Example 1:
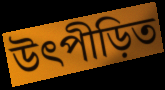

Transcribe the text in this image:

উৎপীড়িত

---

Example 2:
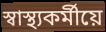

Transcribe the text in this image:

স্বাস্থ্যকৰ্মীয়ে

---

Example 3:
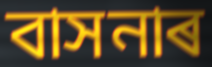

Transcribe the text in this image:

বাসনাৰ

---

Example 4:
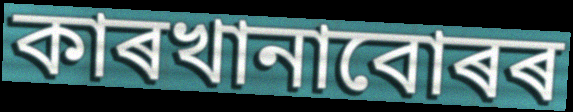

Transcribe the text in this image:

কাৰখানাবোৰৰ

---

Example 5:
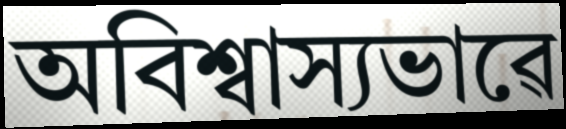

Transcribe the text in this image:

অবিশ্বাস্যভাৱে